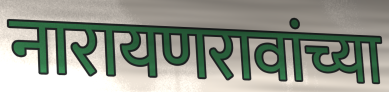
नारायणरावांच्या